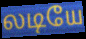
லடியே